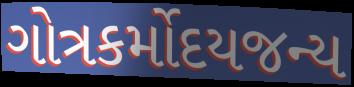
ગોત્રકર્મોદયજન્ય